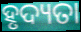
ହୃଦ୍ୟତା